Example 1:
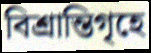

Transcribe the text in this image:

বিশ্রান্তিগৃহে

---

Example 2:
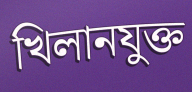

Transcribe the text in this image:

খিলানযুক্ত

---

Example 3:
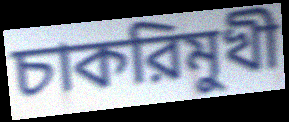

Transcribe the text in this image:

চাকরিমুখী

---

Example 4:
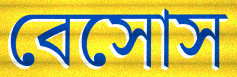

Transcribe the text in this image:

বেসোস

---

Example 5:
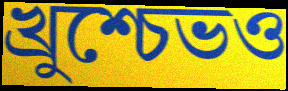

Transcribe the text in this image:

খ্রুশ্চেভও